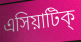
এসিয়াটিক্